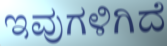
ಇವುಗಳಿಗಿದೆ